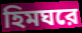
হিমঘরে